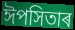
ঈপসিতাৰ